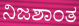
ನಿಜಶಾಂತ